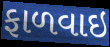
ફાળવાઇ